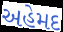
અહેમદ